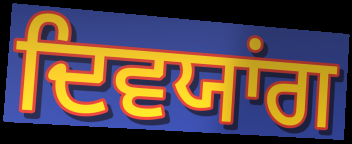
ਦਿਵਯਾਂਗ